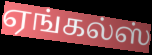
ஏங்கல்ஸ்